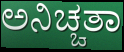
ಅನಿಚ್ಚತಾ